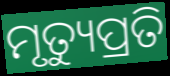
ମୃତ୍ୟୁପ୍ରତି